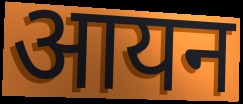
आयन